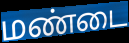
மண்டை